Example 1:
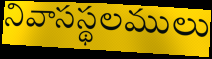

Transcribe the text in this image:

నివాసస్థలములు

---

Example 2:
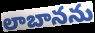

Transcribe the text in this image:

లాబానను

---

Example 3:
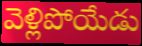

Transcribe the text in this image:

వెళ్లిపోయేడు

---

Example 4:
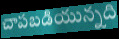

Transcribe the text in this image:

చాపబడియున్నది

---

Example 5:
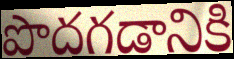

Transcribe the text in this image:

పొదగడానికి